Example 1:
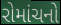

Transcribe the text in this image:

રોમાંચનો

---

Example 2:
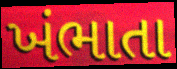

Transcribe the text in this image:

ખંભાતા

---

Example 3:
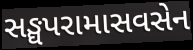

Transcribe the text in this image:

સઙ્ઘપરામાસવસેન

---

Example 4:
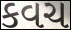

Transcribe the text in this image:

કવચ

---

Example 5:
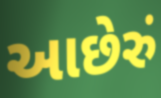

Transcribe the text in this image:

આછેરું